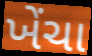
ખેંચા